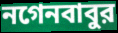
নগেনবাবুর